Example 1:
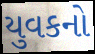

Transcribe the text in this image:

યુવકનો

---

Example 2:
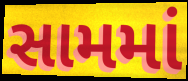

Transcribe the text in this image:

સામમાં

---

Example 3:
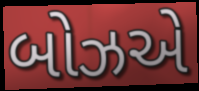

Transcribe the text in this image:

બોઝએ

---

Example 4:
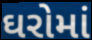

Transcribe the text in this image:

ઘરોમાં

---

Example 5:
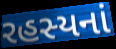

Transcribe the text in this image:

રહસ્યનાં